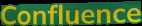
Confluence